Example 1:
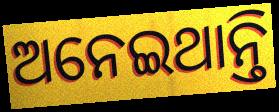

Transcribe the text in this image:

ଅନେଇଥାନ୍ତି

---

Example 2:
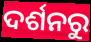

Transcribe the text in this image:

ଦର୍ଶନରୁ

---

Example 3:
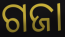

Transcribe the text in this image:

ଗଜା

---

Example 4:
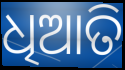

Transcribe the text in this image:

ଧିଆତି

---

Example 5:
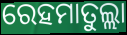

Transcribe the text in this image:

ରେହମାତୁଲ୍ଲା